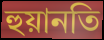
হুয়ানতি